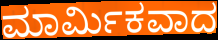
ಮಾರ್ಮಿಕವಾದ